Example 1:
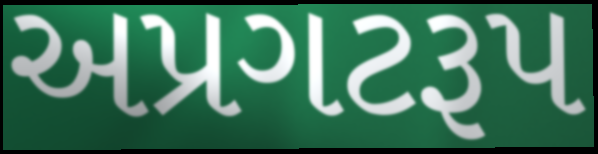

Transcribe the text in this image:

અપ્રગટરૂપ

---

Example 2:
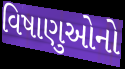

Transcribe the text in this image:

વિષાણુઓનો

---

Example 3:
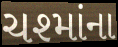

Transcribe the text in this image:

ચશ્માંના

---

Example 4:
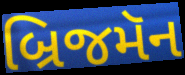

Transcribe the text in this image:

બ્રિજમૅન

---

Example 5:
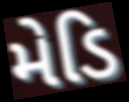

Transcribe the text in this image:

મેડિ